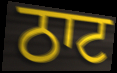
ਠਾਟ